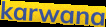
karwana